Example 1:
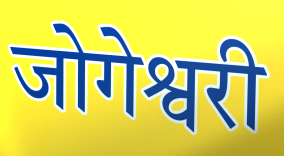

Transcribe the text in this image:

जोगेश्वरी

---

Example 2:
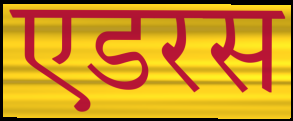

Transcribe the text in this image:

एडरस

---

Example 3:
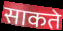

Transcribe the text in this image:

साकते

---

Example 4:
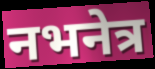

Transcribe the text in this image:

नभनेत्र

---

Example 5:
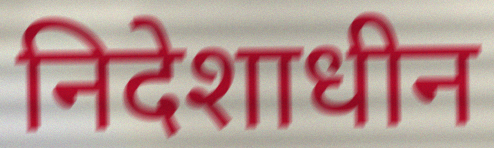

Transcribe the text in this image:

निदेशाधीन